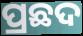
ପ୍ରଛଦ